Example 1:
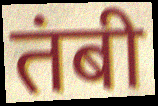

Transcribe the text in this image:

तंबी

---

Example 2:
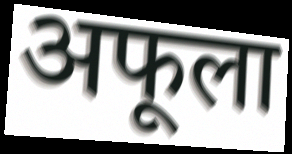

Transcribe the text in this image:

अफूला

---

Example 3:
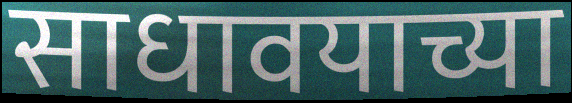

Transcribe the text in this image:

साधावयाच्या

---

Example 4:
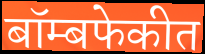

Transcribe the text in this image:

बॉम्बफेकीत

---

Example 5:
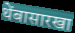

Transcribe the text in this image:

थेंबासारखा